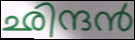
ഛിന്ദൻ